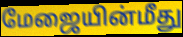
மேஜையின்மீது